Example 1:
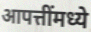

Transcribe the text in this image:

आपत्तींमध्ये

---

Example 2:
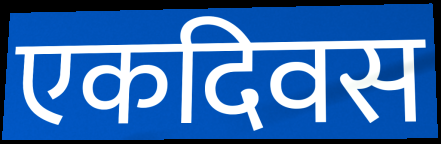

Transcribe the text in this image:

एकदिवस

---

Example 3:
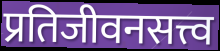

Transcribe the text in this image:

प्रतिजीवनसत्त्व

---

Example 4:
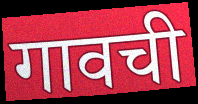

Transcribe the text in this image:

गावची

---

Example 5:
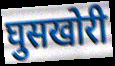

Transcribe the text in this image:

घुसखोरी